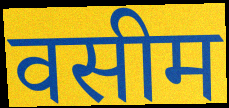
वसीम